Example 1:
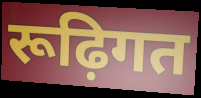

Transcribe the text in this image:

रूढ़िगत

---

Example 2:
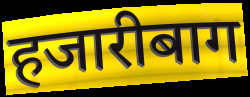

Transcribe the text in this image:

हजारीबाग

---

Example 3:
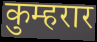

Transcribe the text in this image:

कुम्हरार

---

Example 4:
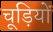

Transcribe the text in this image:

चूड़ियों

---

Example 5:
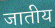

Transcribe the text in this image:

जातीय